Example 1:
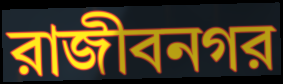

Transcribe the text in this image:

রাজীবনগর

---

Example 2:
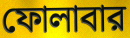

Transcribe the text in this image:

ফোলাবার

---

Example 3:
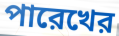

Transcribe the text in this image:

পারেখের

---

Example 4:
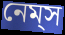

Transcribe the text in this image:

নেম্‌স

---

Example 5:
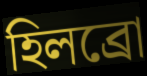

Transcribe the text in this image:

হিলব্রো